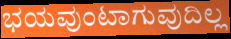
ಭಯವುಂಟಾಗುವುದಿಲ್ಲ